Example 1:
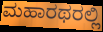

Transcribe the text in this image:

ಮಹಾರಥರಲ್ಲಿ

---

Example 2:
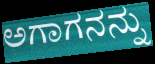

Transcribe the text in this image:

ಅಗಾಗನನ್ನು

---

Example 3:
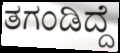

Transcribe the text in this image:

ತಗಂಡಿದ್ದೆ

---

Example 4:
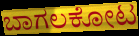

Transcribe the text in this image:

ಬಾಗಲಕೋಟ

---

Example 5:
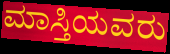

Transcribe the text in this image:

ಮಾಸ್ತಿಯವರು